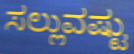
ಸಲ್ಲುವಷ್ಟು